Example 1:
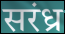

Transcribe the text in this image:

सरंध्र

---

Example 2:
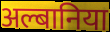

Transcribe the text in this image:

अल्बानिया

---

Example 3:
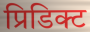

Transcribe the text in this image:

प्रिडिक्ट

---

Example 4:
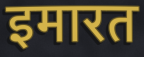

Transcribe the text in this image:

इमारत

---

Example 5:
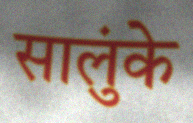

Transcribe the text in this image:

सालुंके